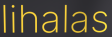
lihalas